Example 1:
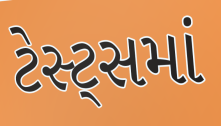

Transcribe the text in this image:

ટેસ્ટ્સમાં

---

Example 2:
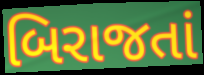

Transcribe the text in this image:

બિરાજતાં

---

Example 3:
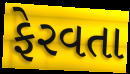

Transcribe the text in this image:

ફેરવતા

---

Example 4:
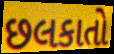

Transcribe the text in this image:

છલકાતો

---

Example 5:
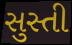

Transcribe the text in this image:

સુસ્તી